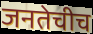
जनतेचीच